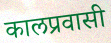
कालप्रवासी